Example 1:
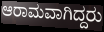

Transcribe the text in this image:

ಆರಾಮವಾಗಿದ್ದರು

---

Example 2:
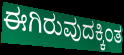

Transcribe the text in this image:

ಈಗಿರುವುದಕ್ಕಿಂತ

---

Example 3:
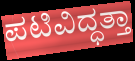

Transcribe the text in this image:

ಪಟಿವಿದ್ಧತ್ತಾ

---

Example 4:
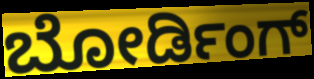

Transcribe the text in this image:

ಬೋರ್ಡಿಂಗ್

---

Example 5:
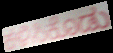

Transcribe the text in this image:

ಕಳಿಸಿಕೊಡು